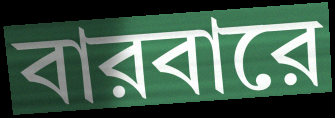
বারবারে